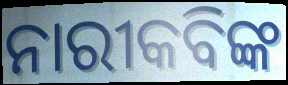
ନାରୀକବିଙ୍କ